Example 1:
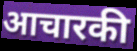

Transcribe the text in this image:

आचारकी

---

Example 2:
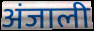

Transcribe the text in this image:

अंजाली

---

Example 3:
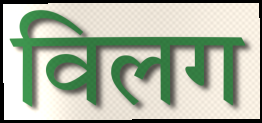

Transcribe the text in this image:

विलग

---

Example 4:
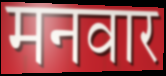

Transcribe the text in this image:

मनवार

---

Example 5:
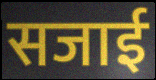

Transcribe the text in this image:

सजाई